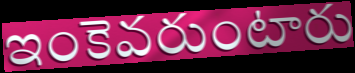
ఇంకెవరుంటారు